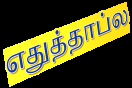
எதுத்தாப்ல